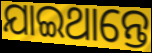
ଯାଇଥାନ୍ତେ